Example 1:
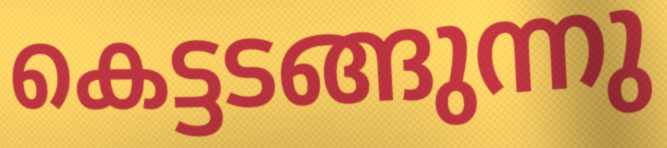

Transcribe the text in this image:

കെട്ടടങ്ങുന്നു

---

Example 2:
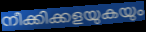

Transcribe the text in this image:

നീക്കിക്കളയുകയും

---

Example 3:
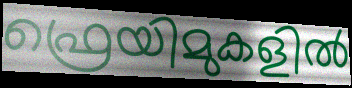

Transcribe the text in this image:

ഫ്രെയിമുകളിൽ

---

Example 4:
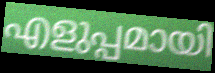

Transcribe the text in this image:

എളുപ്പമായി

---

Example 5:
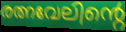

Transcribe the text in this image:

രത്നവേലിന്റെ